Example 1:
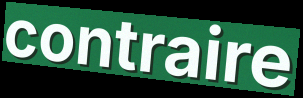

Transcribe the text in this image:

contraire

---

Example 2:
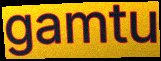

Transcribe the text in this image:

gamtu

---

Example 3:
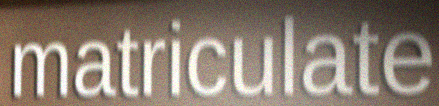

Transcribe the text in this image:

matriculate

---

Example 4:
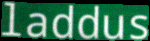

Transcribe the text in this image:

laddus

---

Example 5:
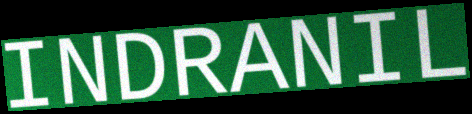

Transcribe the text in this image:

INDRANIL